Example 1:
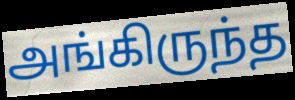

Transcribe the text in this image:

அங்கிருந்த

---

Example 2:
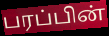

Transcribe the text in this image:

பரப்பின்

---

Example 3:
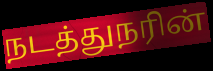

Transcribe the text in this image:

நடத்துநரின்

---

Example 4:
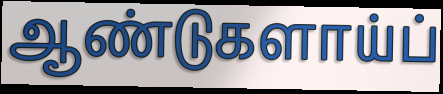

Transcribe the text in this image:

ஆண்டுகளாய்ப்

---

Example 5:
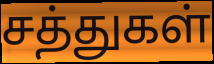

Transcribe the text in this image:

சத்துகள்